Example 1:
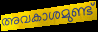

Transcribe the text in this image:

അവകാശമുണ്ട്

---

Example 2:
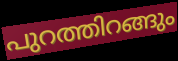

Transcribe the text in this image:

പുറത്തിറങ്ങും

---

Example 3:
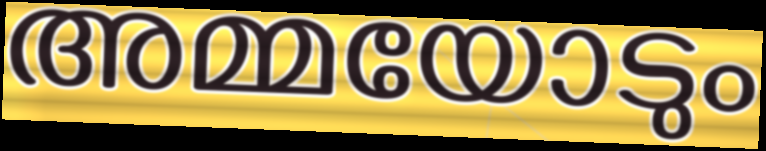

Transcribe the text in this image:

അമ്മയോടും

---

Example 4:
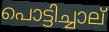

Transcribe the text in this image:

പൊട്ടിച്ചാല്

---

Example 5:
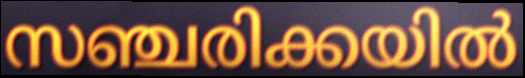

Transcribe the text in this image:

സഞ്ചരിക്കയിൽ